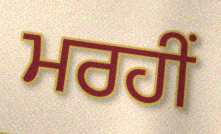
ਮਰਹੀਂ